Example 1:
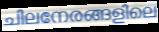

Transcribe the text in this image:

ചിലനേരങ്ങളിലെ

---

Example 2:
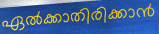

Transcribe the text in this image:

ഏൽക്കാതിരിക്കാൻ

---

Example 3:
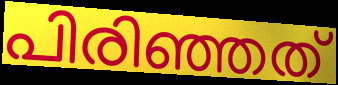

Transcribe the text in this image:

പിരിഞ്ഞത്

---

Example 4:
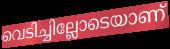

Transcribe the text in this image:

വെടിച്ചില്ലോടെയാണ്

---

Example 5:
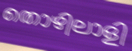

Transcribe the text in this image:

തൊഴിലാളി